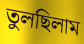
তুলছিলাম